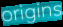
origins